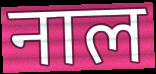
नाल